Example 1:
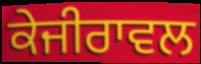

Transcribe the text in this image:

ਕੇਜੀਰਾਵਲ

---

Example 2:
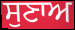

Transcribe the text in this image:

ਸੁਣਾਅ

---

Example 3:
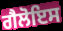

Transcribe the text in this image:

ਗੈਲੋਇਸ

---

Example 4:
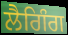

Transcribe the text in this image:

ਲੈਗਿੰਗ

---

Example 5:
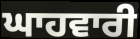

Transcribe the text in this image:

ਘਾਹਵਾਰੀ